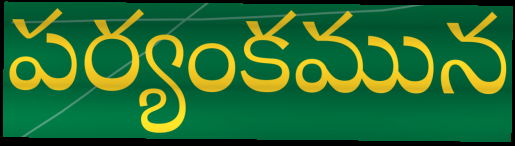
పర్యంకమున